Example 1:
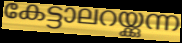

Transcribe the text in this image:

കേട്ടാലറയ്ക്കുന്ന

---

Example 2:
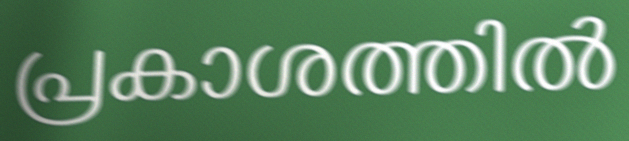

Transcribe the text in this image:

പ്രകാശത്തിൽ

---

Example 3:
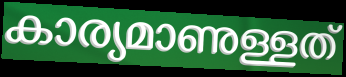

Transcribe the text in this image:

കാര്യമാണുള്ളത്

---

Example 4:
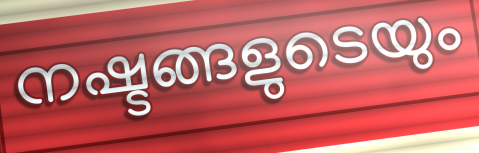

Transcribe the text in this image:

നഷ്ടങ്ങളുടെയും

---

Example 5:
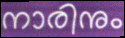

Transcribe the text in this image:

നാരിനും